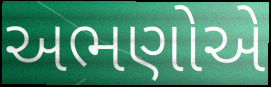
અભણોએ